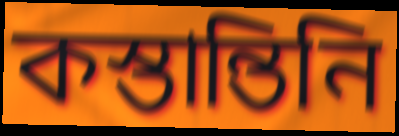
কস্তান্তিনি